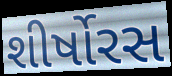
શીર્ષોરસ